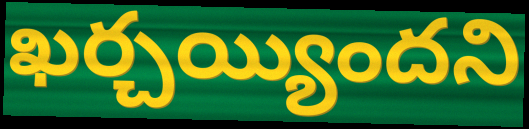
ఖర్చయ్యిందని